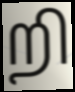
றி